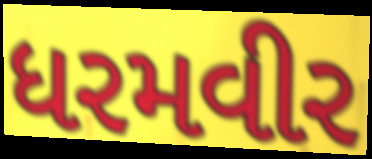
ધરમવીર